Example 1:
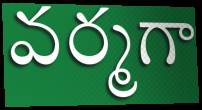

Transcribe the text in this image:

వర్మగా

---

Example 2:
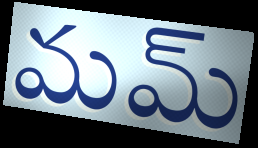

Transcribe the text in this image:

మమ్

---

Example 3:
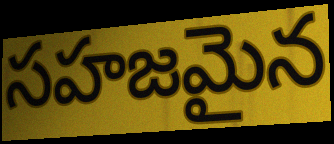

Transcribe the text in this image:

సహజమైన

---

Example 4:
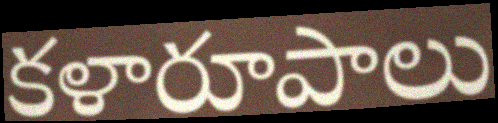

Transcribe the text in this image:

కళారూపాలు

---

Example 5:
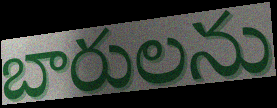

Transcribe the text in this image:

బారులను